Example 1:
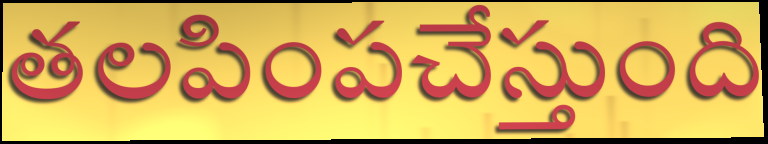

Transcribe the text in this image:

తలపింపచేస్తుంది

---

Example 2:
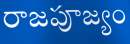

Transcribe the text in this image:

రాజపూజ్యం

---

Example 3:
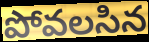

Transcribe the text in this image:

పోవలసిన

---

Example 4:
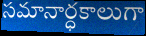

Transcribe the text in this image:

సమానార్ధకాలుగా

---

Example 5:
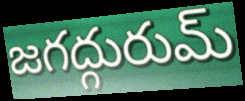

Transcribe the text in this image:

జగద్గురుమ్